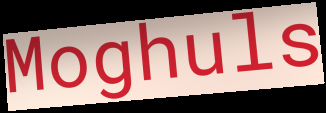
Moghuls